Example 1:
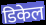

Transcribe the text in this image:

डिकेल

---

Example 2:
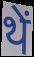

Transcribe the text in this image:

थें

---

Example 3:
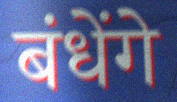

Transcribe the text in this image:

बंधेंगे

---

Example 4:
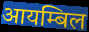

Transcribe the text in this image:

आयम्बिल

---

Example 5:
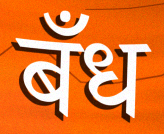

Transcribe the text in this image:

बँध